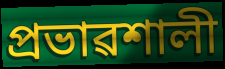
প্ৰভাৱশালী